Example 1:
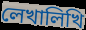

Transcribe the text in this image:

লেখালিখি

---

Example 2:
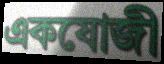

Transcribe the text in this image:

একযোজী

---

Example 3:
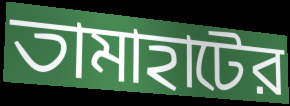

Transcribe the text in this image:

তামাহাটের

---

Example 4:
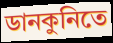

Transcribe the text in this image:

ডানকুনিতে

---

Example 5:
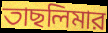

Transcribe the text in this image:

তাছলিমার